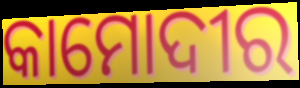
କାମୋଦୀର